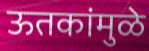
ऊतकांमुळे